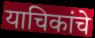
याचिकांचे